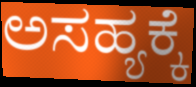
ಅಸಹ್ಯಕ್ಕೆ